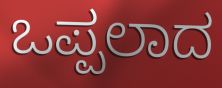
ಒಪ್ಪಲಾದ